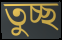
তুচ্ছ